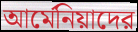
আর্মেনিয়াদের